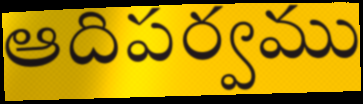
ఆదిపర్వము